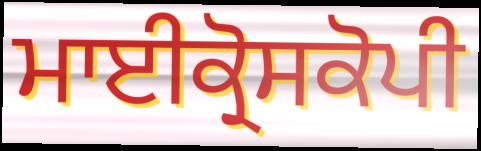
ਮਾਈਕ੍ਰੋਸਕੋਪੀ